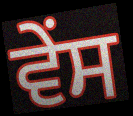
ਵੇਂਸ